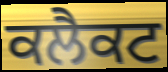
ਕਲੈਕਟ